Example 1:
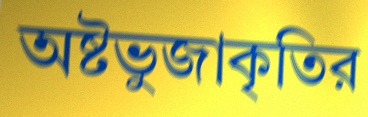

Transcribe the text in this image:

অষ্টভুজাকৃতির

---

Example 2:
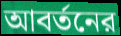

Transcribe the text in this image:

আবর্তনের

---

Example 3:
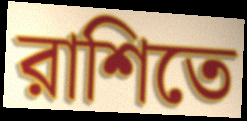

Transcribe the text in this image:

রাশিতে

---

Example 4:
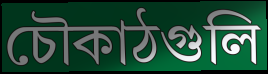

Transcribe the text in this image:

চৌকাঠগুলি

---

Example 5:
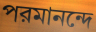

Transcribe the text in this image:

পরমানন্দে